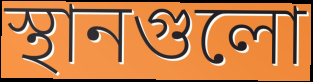
স্থানগুলো